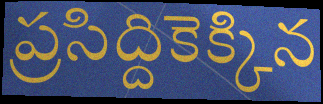
ప్రసిద్దికెక్కిన